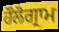
ਹੌਲੋਗ੍ਰਾਮ